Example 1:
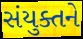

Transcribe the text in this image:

સંયુક્તને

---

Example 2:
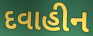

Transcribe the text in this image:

દવાહીન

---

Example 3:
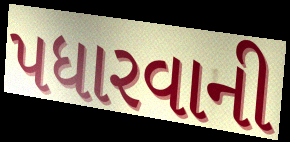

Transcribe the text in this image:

પધારવાની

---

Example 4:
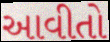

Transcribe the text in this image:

આવીતો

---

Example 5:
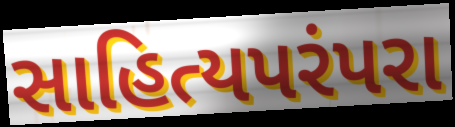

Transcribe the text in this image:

સાહિત્યપરંપરા